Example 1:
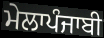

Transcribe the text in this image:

ਮੇਲਾਪੰਜਾਬੀ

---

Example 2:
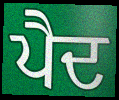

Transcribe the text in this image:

ਪੈਦ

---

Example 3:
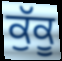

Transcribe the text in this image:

ਕੁੱਕੂ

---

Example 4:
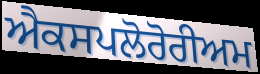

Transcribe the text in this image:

ਐਕਸਪਲੋਰੋਰੀਅਮ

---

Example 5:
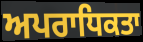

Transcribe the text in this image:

ਅਪਰਾਧਿਕਤਾ